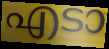
എടാ